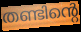
തണ്ടിന്റെ